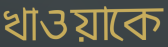
খাওয়াকে